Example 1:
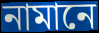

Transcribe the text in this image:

নামানে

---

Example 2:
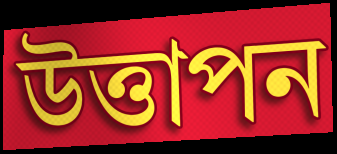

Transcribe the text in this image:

উত্তাপন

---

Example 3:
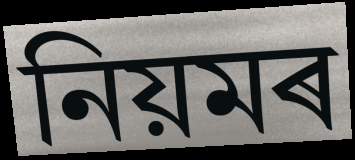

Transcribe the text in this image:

নিয়মৰ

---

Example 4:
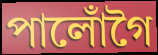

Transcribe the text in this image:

পালোঁগৈ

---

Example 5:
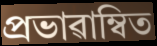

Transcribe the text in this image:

প্ৰভাৱাম্বিত